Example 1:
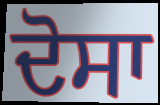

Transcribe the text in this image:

ਦੋਸਾ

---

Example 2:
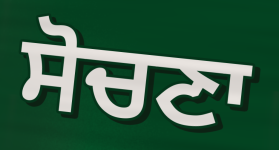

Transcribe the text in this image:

ਸੋਚਣਾ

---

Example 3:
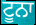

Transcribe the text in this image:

ਟੂਨਾ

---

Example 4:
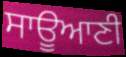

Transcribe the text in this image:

ਸਾਊਆਣੀ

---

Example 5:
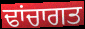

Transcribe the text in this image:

ਢਾਂਚਾਗਤ